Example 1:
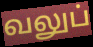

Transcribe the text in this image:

வலுப்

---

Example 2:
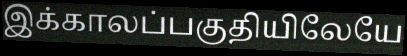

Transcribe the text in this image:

இக்காலப்பகுதியிலேயே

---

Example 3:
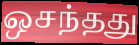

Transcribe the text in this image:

ஒசந்தது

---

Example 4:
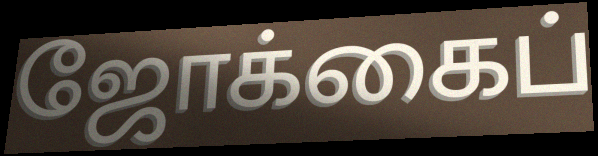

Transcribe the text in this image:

ஜோக்கைப்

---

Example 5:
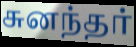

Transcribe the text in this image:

சுனந்தர்